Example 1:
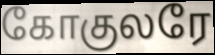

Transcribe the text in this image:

கோகுலரே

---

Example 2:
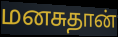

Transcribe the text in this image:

மனசுதான்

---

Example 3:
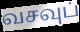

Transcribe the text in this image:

வசவுப்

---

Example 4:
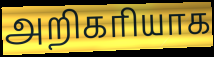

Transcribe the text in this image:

அறிகரியாக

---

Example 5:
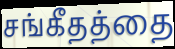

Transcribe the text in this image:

சங்கீதத்தை